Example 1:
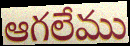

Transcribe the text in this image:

ఆగలేము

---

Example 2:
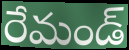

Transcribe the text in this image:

రేమండ్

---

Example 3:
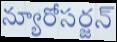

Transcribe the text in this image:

న్యూరోసర్జన్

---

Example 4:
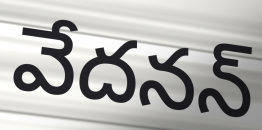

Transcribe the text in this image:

వేదనన్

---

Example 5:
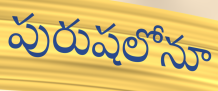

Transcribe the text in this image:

పురుషలోనూ